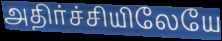
அதிர்ச்சியிலேயே